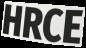
HRCE